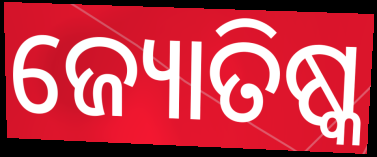
ଜ୍ୟୋତିଷ୍କ